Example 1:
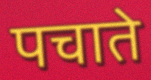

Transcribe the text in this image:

पचाते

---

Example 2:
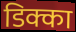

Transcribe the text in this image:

डिक्का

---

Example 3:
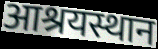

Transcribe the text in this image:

आश्रयस्थान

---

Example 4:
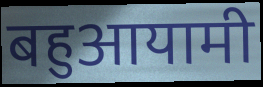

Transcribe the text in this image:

बहुआयामी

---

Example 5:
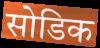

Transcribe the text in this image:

सोडिक